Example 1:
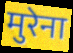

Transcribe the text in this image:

मुरेना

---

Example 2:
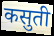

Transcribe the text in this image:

कसुती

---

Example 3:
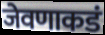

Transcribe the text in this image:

जेवणाकडं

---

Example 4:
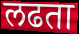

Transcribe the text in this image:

लढता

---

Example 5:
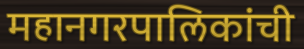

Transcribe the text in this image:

महानगरपालिकांची